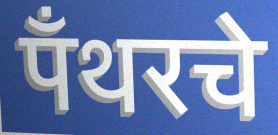
पँथरचे